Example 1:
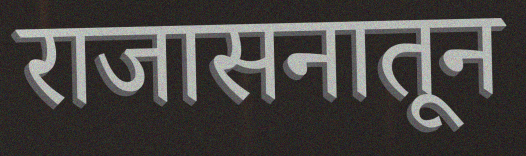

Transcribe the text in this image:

राजासनातून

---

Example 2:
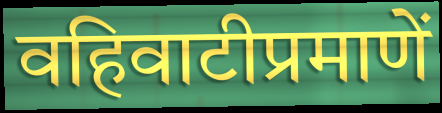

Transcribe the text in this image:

वहिवाटीप्रमाणें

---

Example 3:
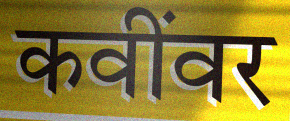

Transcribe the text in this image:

कवींवर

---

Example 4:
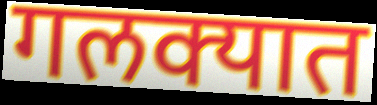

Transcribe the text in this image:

गलक्यात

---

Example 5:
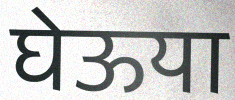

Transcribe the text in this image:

घेऊया